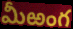
మీఱంగ